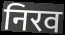
निरव